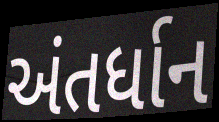
અંતર્ધાન